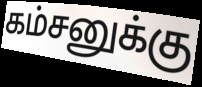
கம்சனுக்கு